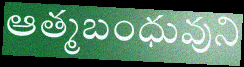
ఆత్మబంధువుని